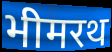
भीमरथ